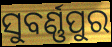
ସୁବର୍ଣ୍ଣପୁର